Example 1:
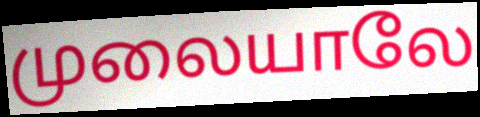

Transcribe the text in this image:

முலையாலே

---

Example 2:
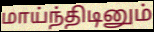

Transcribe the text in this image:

மாய்ந்திடினும்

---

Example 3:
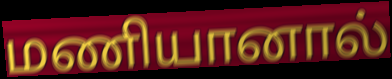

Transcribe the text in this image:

மணியானால்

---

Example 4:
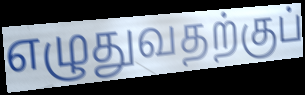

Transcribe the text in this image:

எழுதுவதற்குப்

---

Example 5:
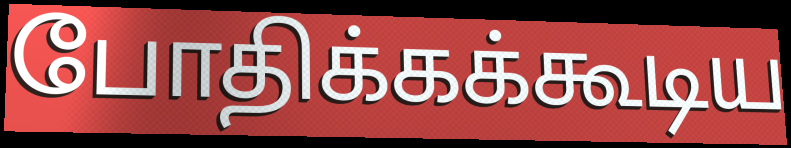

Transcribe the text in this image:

போதிக்கக்கூடிய